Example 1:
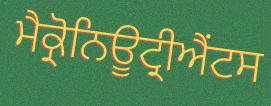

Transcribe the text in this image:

ਮੈਕ੍ਰੋਨਿਊਟ੍ਰੀਐਂਟਸ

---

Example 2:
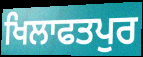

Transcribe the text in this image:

ਖਿਲਾਫਤਪੁਰ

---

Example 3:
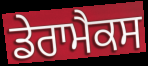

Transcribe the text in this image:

ਡੇਰਾਮੈਕਸ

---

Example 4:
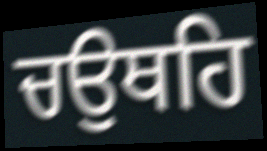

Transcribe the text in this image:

ਚਉਥਹਿ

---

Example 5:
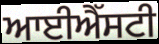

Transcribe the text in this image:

ਆਈਐੱਸਟੀ